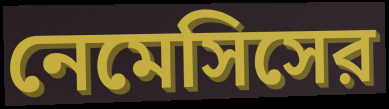
নেমেসিসের